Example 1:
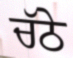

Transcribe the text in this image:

ਚੱਠੇ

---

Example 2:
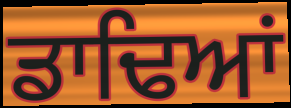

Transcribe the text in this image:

ਡਾਢਿਆਂ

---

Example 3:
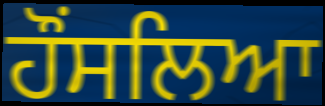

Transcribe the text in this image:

ਹੌਂਸਲਿਆ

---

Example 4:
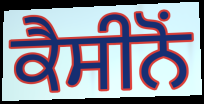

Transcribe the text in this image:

ਕੈਸੀਨੋਂ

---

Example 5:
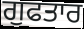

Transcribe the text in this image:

ਗੁਫਤਾਰ